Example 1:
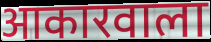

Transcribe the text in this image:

आकारवाला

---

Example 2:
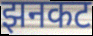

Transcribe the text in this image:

झनकट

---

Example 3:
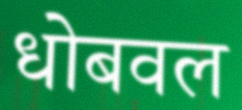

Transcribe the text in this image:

धोबवल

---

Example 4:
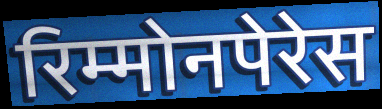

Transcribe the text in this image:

रिम्मोनपेरेस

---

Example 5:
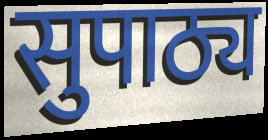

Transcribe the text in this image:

सुपाठ्य